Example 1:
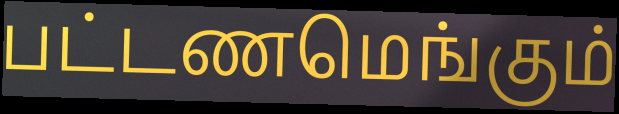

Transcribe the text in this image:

பட்டணமெங்கும்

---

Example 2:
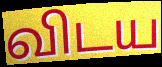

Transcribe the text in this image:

விடய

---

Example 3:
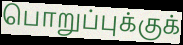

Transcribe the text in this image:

பொறுப்புக்குக்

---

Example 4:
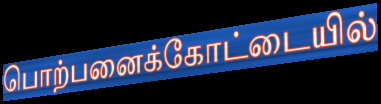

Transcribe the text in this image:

பொற்பனைக்கோட்டையில்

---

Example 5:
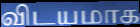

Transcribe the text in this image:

விடயமாக